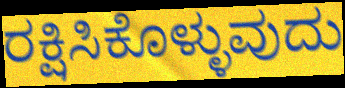
ರಕ್ಷಿಸಿಕೊಳ್ಳುವುದು